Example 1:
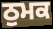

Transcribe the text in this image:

ਠੁਮਕ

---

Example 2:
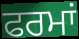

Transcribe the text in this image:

ਫਰਮਾਂ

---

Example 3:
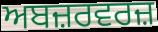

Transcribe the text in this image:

ਅਬਜ਼ਰਵਰਜ਼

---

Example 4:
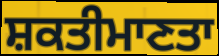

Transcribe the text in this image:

ਸ਼ਕਤੀਮਾਣਤਾ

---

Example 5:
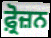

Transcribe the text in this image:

ਫ਼੍ਰੋਜ਼ਨ